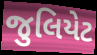
જુલિયેટ